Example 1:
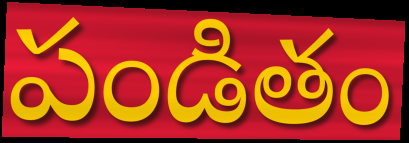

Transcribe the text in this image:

పండితం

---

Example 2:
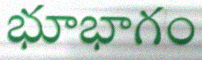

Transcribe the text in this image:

భూభాగం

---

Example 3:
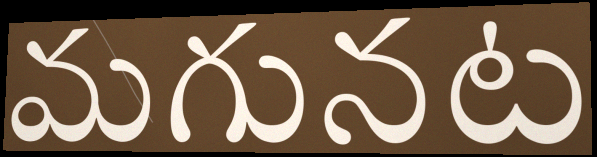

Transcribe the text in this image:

మగునట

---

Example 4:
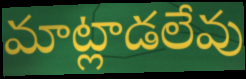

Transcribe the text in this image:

మాట్లాడలేవు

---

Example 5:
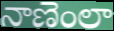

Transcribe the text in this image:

నాణెంలా